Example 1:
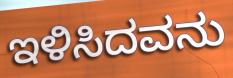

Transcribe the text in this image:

ಇಳಿಸಿದವನು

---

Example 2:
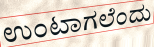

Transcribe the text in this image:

ಉಂಟಾಗಲೆಂದು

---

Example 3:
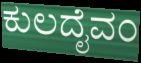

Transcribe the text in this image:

ಕುಲದೈವಂ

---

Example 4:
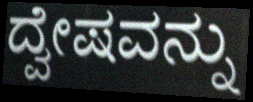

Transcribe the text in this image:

ದ್ವೇಷವನ್ನು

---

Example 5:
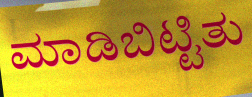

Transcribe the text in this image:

ಮಾಡಿಬಿಟ್ಟಿತು